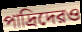
পাদ্রিদেরও